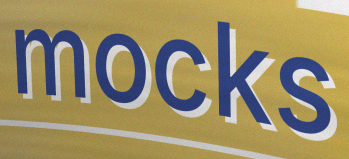
mocks